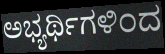
ಅಭ್ಯರ್ಥಿಗಳಿಂದ